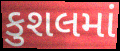
કુશલમાં